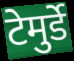
टेमुर्डे